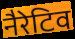
नैरेटिव